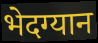
भेदग्यान